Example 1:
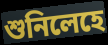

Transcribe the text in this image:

শুনিলেহে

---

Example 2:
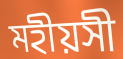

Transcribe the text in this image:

মহীয়সী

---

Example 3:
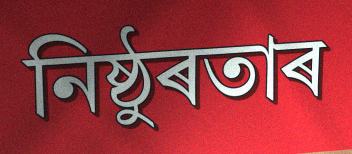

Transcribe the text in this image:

নিষ্ঠুৰতাৰ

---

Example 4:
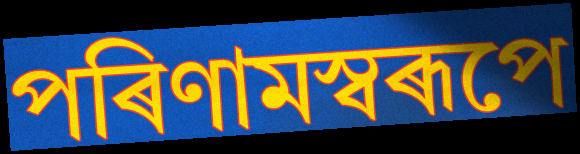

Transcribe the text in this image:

পৰিণামস্বৰূপে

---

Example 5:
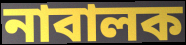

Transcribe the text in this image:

নাবালক